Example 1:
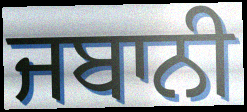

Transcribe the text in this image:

ਜਬਾਨੀ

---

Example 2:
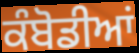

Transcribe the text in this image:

ਕੰਬੋਡੀਆਂ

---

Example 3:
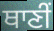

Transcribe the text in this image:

ਥਾਣੀਂ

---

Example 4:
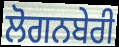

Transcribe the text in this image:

ਲੋਗਨਬੇਰੀ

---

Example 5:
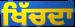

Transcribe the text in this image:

ਖਿੱਚਦਾ